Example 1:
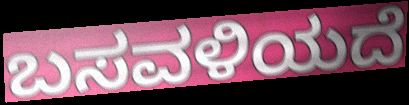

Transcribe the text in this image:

ಬಸವಳಿಯದೆ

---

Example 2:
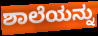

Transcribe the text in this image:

ಶಾಲೆಯನ್ನು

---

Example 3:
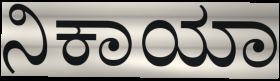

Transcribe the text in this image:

ನಿಕಾಯಾ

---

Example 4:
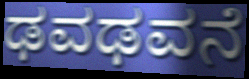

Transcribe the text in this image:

ಢವಢವನೆ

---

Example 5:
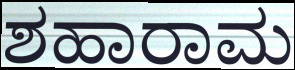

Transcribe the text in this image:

ಶಹಾರಾಮ